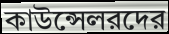
কাউন্সেলরদের